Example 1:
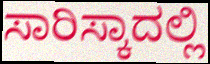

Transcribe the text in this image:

ಸಾರಿಸ್ಕಾದಲ್ಲಿ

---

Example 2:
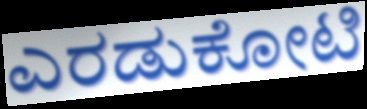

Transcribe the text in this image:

ಎರಡುಕೋಟಿ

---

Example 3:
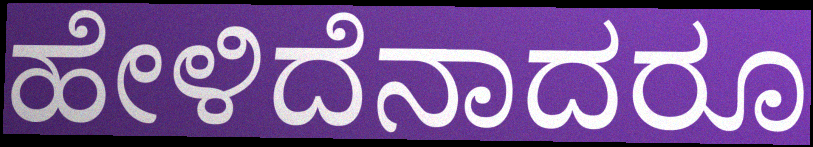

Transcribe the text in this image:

ಹೇಳಿದೆನಾದರೂ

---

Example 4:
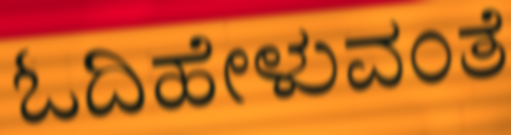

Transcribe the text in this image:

ಓದಿಹೇಳುವಂತೆ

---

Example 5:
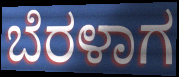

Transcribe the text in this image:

ಬೆರಳಾಗ